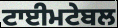
ਟਾਈਮਟੇਬਲ